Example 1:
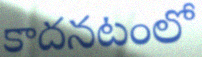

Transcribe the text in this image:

కాదనటంలో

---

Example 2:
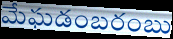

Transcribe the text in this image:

మేఘడంబరంబు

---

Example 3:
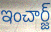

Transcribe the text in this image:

ఇంచార్జ్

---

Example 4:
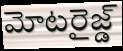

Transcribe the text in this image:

మోటరైజ్డ్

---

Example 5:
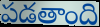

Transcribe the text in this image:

పడతాంది